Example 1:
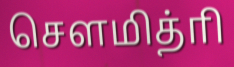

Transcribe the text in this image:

சௌமித்ரி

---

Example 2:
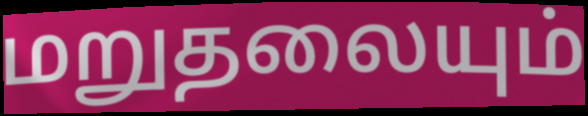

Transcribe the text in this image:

மறுதலையும்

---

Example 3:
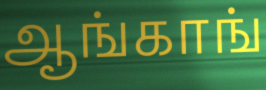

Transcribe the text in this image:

ஆங்காங்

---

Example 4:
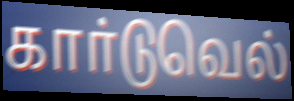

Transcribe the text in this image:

கார்டுவெல்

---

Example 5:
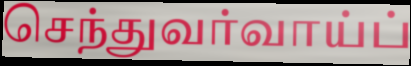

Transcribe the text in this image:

செந்துவர்வாய்ப்